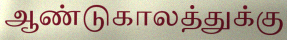
ஆண்டுகாலத்துக்கு